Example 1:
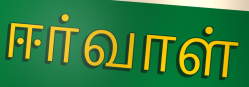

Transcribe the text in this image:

ஈர்வாள்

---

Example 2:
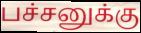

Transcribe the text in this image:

பச்சனுக்கு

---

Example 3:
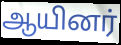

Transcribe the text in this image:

ஆயினர்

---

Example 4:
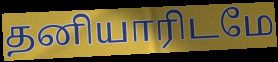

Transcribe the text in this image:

தனியாரிடமே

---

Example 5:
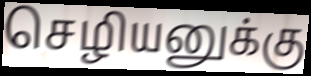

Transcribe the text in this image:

செழியனுக்கு